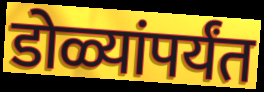
डोळ्यांपर्यंत